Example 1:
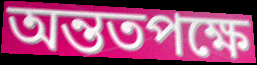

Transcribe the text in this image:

অন্ততপক্ষে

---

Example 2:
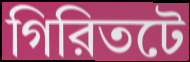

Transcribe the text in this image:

গিরিতটে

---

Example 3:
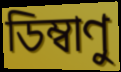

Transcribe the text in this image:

ডিম্বাণু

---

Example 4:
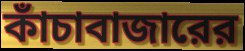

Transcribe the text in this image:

কাঁচাবাজারের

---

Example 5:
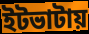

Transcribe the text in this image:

ইটভাটায়